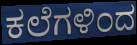
ಕಲೆಗಳಿಂದ